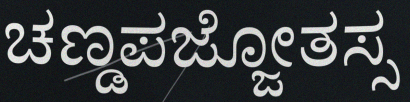
ಚಣ್ಡಪಜ್ಜೋತಸ್ಸ